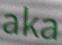
aka